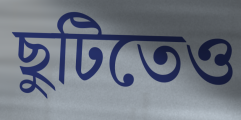
ছুটিতেও